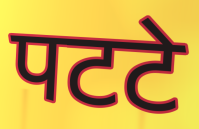
पटटे